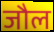
जौल